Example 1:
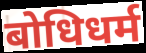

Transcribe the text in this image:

बोधिधर्म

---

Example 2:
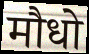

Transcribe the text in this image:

मौधो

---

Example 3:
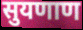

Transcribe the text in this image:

सुयणाण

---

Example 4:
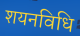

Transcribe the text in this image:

शयनविधि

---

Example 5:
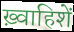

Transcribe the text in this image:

ख़्वाहिशें